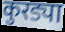
कुरड्या